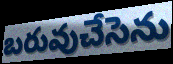
బరువుచేసెను